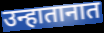
उन्हातानात